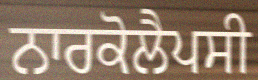
ਨਾਰਕੋਲੈਪਸੀ